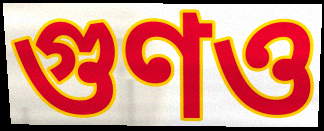
গুণও